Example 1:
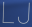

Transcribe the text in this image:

LJ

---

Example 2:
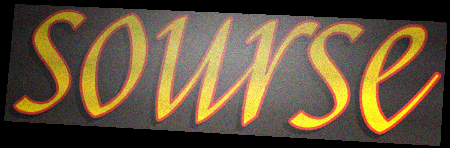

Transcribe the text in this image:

sourse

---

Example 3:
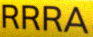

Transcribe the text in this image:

RRRA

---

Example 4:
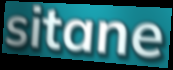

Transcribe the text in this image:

sitane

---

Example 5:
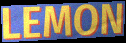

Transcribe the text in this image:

LEMON